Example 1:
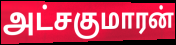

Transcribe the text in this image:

அட்சகுமாரன்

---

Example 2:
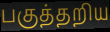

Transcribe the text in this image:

பகுத்தறிய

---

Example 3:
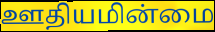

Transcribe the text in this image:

ஊதியமின்மை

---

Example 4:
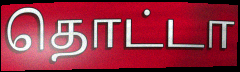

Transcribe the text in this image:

தொட்டா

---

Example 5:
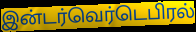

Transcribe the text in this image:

இன்டர்வெர்டெபிரல்